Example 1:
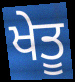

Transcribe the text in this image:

ਖੇਤੂ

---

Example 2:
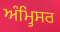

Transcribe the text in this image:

ਅੰਮ੍ਤਿਸਰ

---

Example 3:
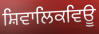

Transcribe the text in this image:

ਸ਼ਿਵਾਲਿਕਵਿਊ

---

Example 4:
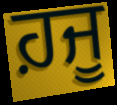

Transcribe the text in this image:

ਹ਼ਜੂ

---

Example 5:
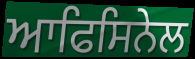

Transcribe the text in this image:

ਆਫਿਸਿਨੇਲ